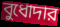
বুধোদার